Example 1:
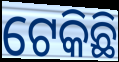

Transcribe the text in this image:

ଟେକିଛି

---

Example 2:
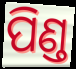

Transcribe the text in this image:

ପିଣ୍ଡ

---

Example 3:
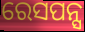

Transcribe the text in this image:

ରେସପନ୍ସ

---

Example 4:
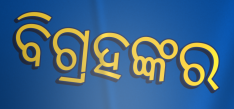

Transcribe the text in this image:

ବିଗ୍ରହଙ୍କର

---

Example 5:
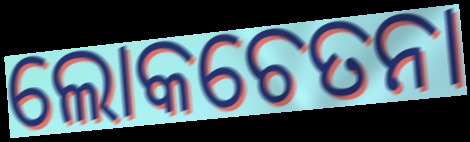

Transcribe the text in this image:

ଲୋକଚେତନା